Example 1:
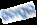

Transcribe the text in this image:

ପିତାପୁର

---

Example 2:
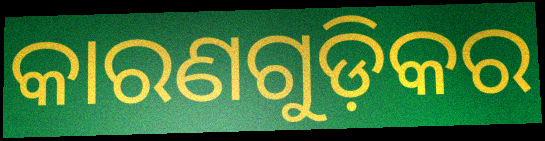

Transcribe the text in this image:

କାରଣଗୁଡ଼ିକର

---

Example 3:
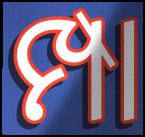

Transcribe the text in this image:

ମ୍ପା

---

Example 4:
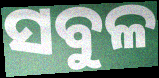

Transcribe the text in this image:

ସବୁଳ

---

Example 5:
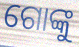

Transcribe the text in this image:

ଗୋଙ୍କୁ